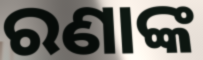
ରଣାଙ୍କ